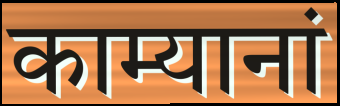
काम्यानां